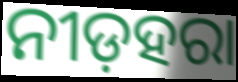
ନୀଡ଼ହରା